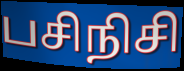
பசிநிசி